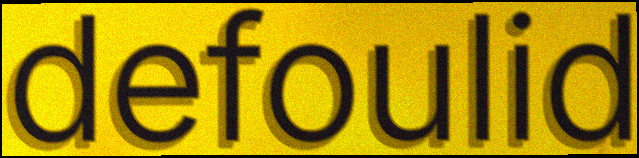
defoulid